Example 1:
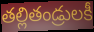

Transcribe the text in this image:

తల్లితండ్రులకీ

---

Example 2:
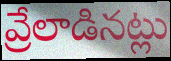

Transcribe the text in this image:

వ్రేలాడినట్లు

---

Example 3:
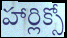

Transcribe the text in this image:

హార్లిక్సో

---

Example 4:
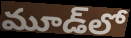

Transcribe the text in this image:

మూడ్‌లో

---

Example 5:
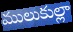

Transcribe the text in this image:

ములుకుల్లా